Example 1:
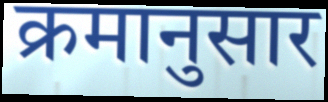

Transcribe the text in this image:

क्रमानुसार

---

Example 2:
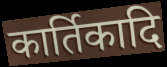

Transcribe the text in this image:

कार्तिकादि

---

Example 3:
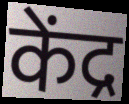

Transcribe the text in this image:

केंद्र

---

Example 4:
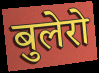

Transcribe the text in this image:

बुलेरो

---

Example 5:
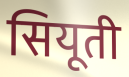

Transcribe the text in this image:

सियूती